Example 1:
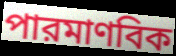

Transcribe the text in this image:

পারমাণবিক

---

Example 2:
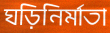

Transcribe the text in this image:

ঘড়িনির্মাতা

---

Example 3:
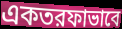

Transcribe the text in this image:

একতরফাভাবে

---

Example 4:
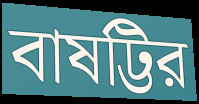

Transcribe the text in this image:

বাষট্টির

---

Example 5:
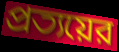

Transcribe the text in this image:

প্রত্যয়ের